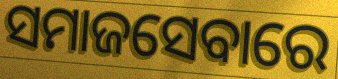
ସମାଜସେବାରେ